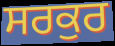
ਸਰਕੁਰ